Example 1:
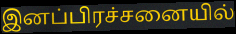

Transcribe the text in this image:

இனப்பிரச்சனையில்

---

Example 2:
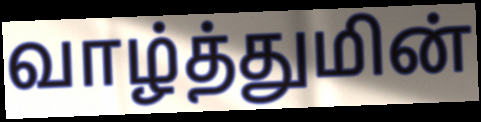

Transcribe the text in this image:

வாழ்த்துமின்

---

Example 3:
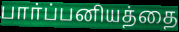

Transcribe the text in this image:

பார்ப்பனியத்தை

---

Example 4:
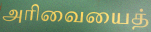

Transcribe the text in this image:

அரிவையைத்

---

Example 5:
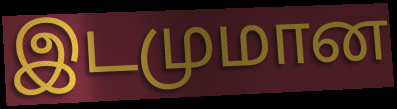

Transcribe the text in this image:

இடமுமான